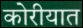
कोरीयात